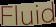
Fluid